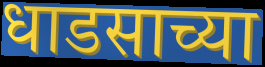
धाडसाच्या